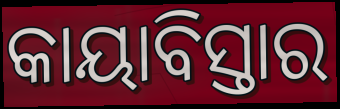
କାୟାବିସ୍ତାର